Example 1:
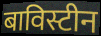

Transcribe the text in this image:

बाविस्टीन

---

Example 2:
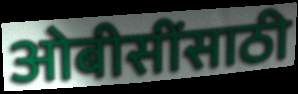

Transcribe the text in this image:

ओबीसींसाठी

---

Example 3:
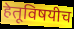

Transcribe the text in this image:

हेतूविषयीच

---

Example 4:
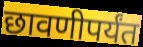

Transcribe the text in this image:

छावणीपर्यंत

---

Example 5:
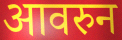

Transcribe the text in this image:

आवरुन